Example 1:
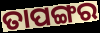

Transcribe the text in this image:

ତାପଙ୍ଗର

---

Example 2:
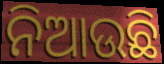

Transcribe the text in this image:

ନିଆଉଛି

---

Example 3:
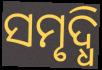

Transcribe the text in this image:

ସମୃଦ୍ଧି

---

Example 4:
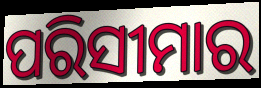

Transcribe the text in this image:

ପରିସୀମାର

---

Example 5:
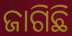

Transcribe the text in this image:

ଜାଗିଛି